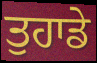
ਤੁਹਾਡੇ